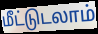
மீட்டுடலாம்